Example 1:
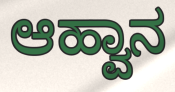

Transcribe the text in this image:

ಆಹ್ವಾನ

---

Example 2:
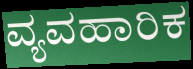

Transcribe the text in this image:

ವ್ಯವಹಾರಿಕ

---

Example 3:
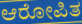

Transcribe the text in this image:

ಆರೋಪಿತ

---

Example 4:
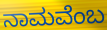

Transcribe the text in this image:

ನಾಮವೆಂಬ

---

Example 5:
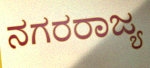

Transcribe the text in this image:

ನಗರರಾಜ್ಯ